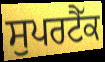
ਸੁਪਰਟੈੱਕ